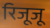
रिजूजू